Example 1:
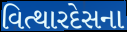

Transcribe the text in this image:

વિત્થારદેસના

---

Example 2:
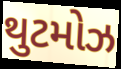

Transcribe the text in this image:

થુટમોઝ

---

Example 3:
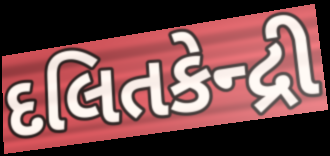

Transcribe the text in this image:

દલિતકેન્દ્રી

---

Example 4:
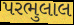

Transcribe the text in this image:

પરભુલાલ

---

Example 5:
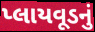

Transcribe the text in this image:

પ્લાયવૂડનું